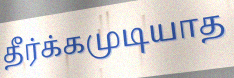
தீர்க்கமுடியாத